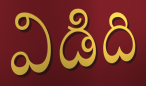
విడిది